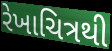
રેખાચિત્રથી